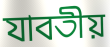
যাবতীয়